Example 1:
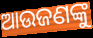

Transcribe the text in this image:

ଆଉଜଣଙ୍କୁ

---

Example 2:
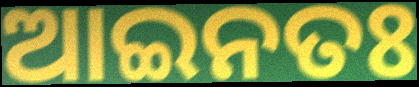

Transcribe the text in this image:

ଆଇନତଃ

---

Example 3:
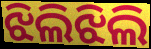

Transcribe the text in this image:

ଝିଲିଝିଲି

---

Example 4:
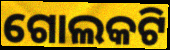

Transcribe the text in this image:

ଗୋଲକଟି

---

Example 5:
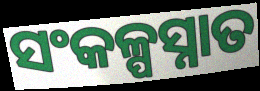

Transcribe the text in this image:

ସଂକଳ୍ପସ୍ନାତ